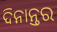
ଦିନାନ୍ତର